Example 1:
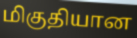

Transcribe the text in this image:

மிகுதியான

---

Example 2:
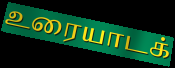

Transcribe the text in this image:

உரையாடக்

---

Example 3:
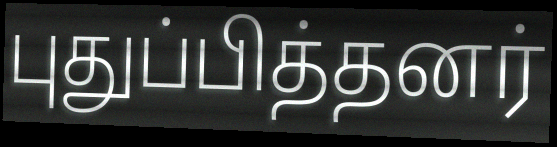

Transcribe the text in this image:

புதுப்பித்தனர்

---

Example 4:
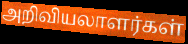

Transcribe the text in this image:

அறிவியலாளர்கள்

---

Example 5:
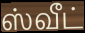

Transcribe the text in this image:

ஸ்வீட்